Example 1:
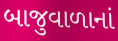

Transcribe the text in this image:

બાજુવાળાનાં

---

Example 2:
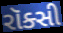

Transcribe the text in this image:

રૉક્સી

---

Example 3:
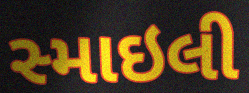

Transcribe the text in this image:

સ્માઇલી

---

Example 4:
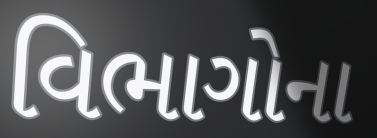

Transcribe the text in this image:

વિભાગોના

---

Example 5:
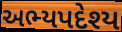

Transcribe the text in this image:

અભ્યપદેશ્ય